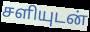
சளியுடன்